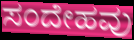
ಸಂದೇಹವು